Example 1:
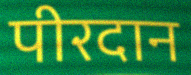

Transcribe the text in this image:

पीरदान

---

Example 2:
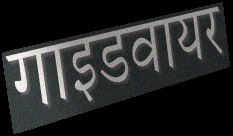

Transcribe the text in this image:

गाइडवायर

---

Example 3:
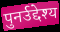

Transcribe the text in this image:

पुनर्उद्देश्य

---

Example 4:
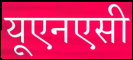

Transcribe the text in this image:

यूएनएसी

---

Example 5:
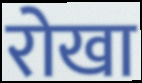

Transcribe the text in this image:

रोखा